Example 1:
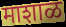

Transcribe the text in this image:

माशाळ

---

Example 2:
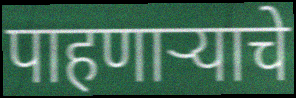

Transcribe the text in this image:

पाहणाऱ्याचे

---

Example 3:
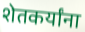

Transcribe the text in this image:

शेतकर्यांना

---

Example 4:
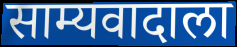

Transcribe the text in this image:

साम्यवादाला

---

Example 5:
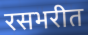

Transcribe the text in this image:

रसभरीत